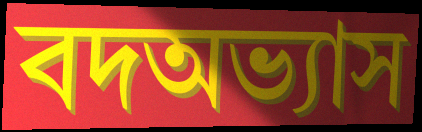
বদঅভ্যাস